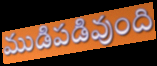
ముడిపడివుంది